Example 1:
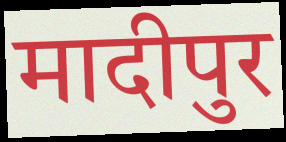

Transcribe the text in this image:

मादीपुर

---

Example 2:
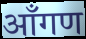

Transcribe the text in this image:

आँगण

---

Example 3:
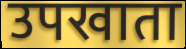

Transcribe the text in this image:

उपखाता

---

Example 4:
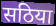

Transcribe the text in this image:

सठिया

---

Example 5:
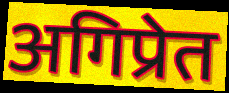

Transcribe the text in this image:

अगिप्रेत